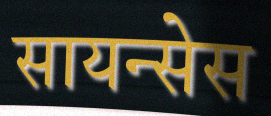
सायन्सेस